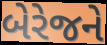
બેરેજને